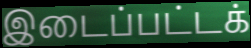
இடைப்பட்டக்